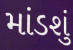
માંડશું